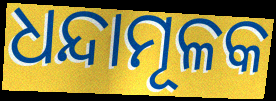
ଧନ୍ଦାମୂଳକ